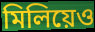
মিলিয়েও